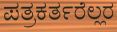
ಪತ್ರಕರ್ತರೆಲ್ಲರ